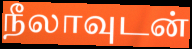
நீலாவுடன்